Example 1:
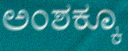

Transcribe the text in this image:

ಅಂಶಕ್ಕೂ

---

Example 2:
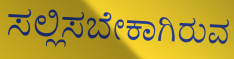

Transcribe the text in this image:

ಸಲ್ಲಿಸಬೇಕಾಗಿರುವ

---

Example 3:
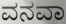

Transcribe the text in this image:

ವನವಾ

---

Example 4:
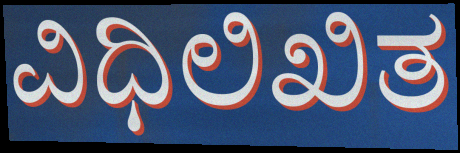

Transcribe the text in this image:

ವಿಧಿಲಿಖಿತ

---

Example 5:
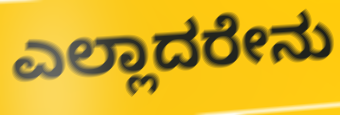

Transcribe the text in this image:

ಎಲ್ಲಾದರೇನು